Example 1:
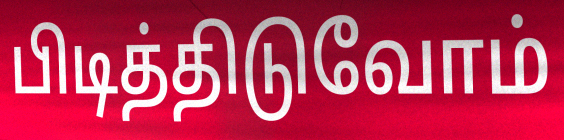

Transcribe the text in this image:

பிடித்திடுவோம்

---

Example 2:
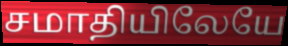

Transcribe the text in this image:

சமாதியிலேயே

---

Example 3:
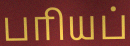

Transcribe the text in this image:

பரியப்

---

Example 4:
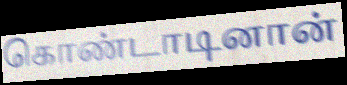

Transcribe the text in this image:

கொண்டாடினான்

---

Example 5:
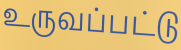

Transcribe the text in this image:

உருவப்பட்டு